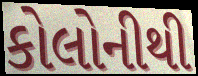
કોલોનીથી